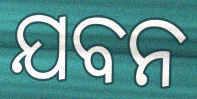
ଯବନ